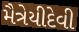
મૈત્રેયીદેવી